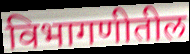
विभागणीतील